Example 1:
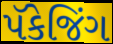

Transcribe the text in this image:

પૅકેજિંગ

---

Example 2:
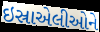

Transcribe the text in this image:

ઇસ્રાએલીઓને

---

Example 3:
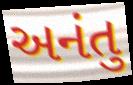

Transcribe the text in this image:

અનંતુ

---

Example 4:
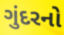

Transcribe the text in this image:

ગુંદરનો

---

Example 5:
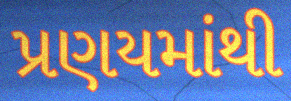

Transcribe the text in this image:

પ્રણયમાંથી